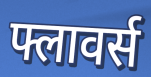
फ्लावर्स